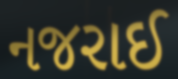
નજરાઈ